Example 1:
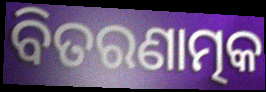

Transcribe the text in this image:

ବିତରଣାତ୍ମକ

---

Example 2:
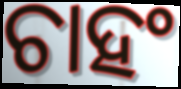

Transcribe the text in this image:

ଚାହଂ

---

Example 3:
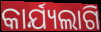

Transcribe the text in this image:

କାର୍ଯ୍ୟଲାଗି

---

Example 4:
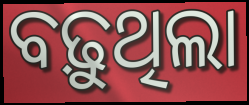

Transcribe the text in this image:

ବଢ଼ୁଥିଲା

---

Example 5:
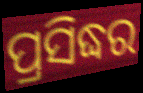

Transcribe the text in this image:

ପ୍ରସିଦ୍ଧର